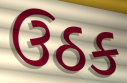
ઉઠક